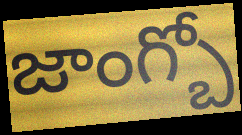
జాంగ్బో